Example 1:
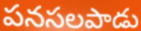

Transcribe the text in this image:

పనసలపాడు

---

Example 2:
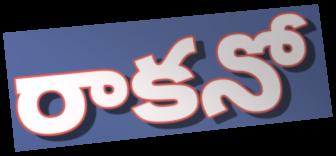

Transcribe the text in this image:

రాకనో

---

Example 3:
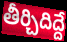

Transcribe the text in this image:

తీర్చిదిద్దే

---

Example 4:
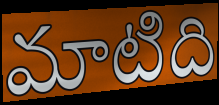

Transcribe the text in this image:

మాటిది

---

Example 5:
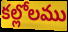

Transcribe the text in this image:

కల్లోలము